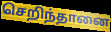
செறிந்தானை